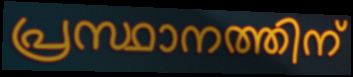
പ്രസ്ഥാനത്തിന്